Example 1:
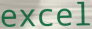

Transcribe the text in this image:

excel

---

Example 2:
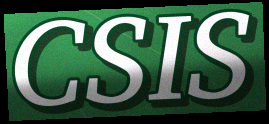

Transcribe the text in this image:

CSIS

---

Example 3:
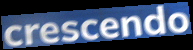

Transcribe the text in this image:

crescendo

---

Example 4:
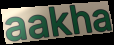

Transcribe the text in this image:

aakha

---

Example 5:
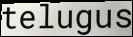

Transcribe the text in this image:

telugus